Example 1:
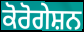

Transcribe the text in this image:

ਕੋਰੋਗੇਸ਼ਨ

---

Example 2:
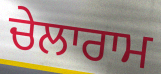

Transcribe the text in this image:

ਚੇਲਾਰਾਮ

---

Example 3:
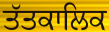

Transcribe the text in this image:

ਤੱਤਕਾਲਿਕ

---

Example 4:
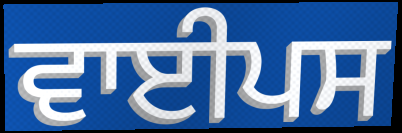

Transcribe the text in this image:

ਵਾਈਪਸ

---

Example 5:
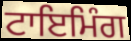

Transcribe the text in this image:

ਟਾਇਮਿੰਗ